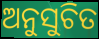
ଅନୁସୁଚିତ